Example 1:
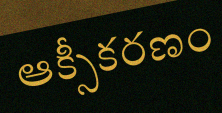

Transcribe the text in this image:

ఆక్సీకరణం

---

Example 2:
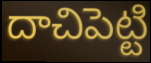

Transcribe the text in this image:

దాచిపెట్టి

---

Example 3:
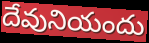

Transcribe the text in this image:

దేవునియందు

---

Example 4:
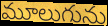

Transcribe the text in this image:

మూలుగును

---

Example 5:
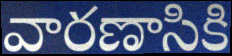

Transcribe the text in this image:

వారణాసికి